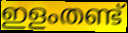
ഇളംതണ്ട്